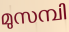
മുസമ്പി